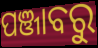
ପଞ୍ଜାବରୁ